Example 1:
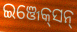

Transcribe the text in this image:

ଇଞ୍ଜେକ୍‍ସନ୍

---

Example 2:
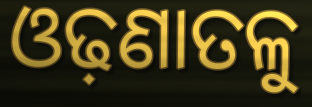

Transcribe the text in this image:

ଓଢ଼ଣାତଳୁ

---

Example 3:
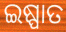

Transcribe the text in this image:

ଇଷ୍ପାତ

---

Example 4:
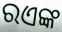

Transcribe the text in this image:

ରଏଙ୍କ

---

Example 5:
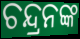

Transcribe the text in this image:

ଚନ୍ଦ୍ରନଙ୍କ